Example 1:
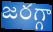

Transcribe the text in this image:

జరగ్గా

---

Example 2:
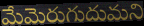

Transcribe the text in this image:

మేమెరుగుదుమని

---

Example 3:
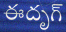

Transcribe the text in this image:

ఈదృగ్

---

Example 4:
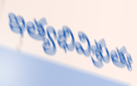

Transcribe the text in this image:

ఇత్యభివిశ్రుతః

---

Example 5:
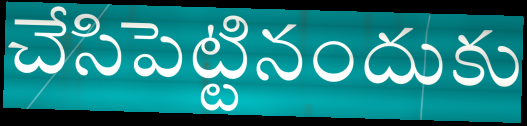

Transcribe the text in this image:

చేసిపెట్టినందుకు